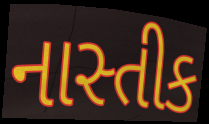
નાસ્તીક